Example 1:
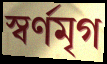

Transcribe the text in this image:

স্বর্ণমৃগ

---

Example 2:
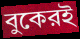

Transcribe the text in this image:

বুকেরই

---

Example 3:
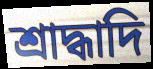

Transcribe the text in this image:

শ্রাদ্ধাদি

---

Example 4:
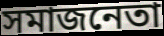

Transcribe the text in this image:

সমাজনেতা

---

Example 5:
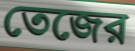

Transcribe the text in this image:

তেজের